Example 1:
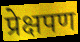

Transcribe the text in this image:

प्रेक्षपण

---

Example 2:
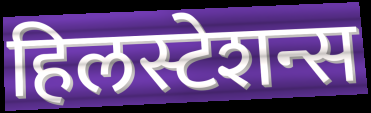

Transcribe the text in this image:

हिलस्टेशन्स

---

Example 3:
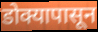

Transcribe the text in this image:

डोक्यापासून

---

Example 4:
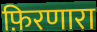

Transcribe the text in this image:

फ़िरणारा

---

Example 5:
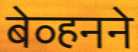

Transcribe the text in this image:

बेव्हनने